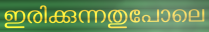
ഇരിക്കുന്നതുപോലെ